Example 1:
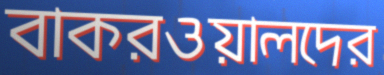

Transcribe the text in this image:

বাকরওয়ালদের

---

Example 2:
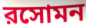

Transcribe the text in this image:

রসোমন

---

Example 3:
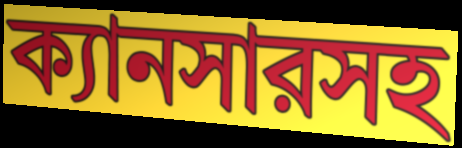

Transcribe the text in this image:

ক্যানসারসহ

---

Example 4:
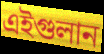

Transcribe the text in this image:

এইগুলান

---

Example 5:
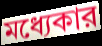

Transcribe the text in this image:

মধ্যেকার